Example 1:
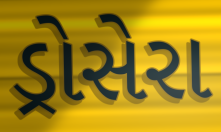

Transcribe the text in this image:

ડ્રોસેરા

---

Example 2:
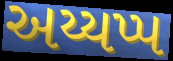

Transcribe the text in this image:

અય્યપ્પ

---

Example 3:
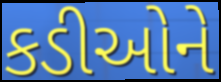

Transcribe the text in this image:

કડીઓને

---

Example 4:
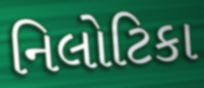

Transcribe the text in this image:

નિલોટિકા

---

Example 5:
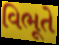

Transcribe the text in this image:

વિભૂતે